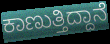
ಕಾಣುತ್ತಿದ್ದಾನೆ